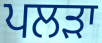
ਪਲੜਾ